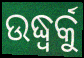
ଉଦ୍ଧ୍ୱର୍କୁ